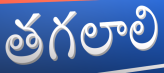
తగలాలి